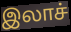
இலாச்